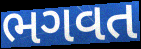
ભગવત